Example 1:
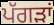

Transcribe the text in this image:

ਪੱਗੜਾਂ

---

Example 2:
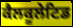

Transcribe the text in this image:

ਕੈਲਕੂਲੇਟਿਡ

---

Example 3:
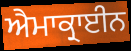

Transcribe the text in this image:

ਐਮਾਕ੍ਰਾਈਨ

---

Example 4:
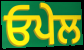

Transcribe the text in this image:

ਓਪੇਲ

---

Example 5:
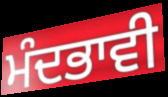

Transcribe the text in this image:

ਮੰਦਭਾਵੀ